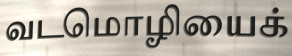
வடமொழியைக்